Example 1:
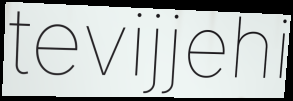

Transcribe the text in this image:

tevijjehi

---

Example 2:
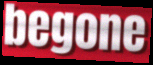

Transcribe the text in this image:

begone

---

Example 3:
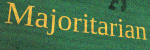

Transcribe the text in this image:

Majoritarian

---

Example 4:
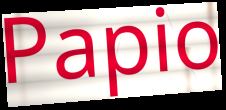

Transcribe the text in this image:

Papio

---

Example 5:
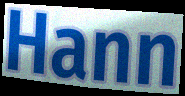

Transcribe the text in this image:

Hann